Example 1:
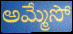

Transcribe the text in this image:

అమ్మేసో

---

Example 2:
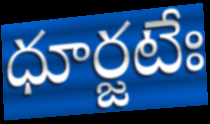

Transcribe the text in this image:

ధూర్జటేః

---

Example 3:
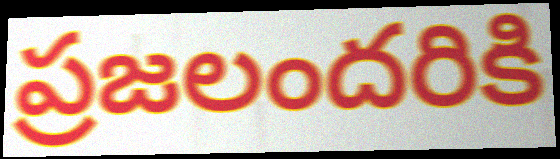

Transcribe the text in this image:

ప్రజలందరికి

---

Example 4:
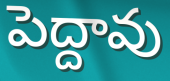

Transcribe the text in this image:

పెద్దావు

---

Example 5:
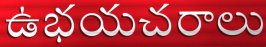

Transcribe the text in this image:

ఉభయచరాలు